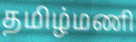
தமிழ்மணி